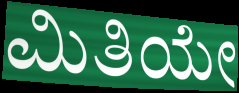
ಮಿತಿಯೇ